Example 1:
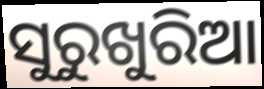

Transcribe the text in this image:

ସୁରୁଖୁରିଆ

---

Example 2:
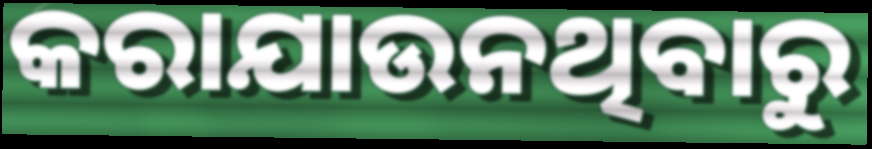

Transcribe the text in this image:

କରାଯାଉନଥିବାରୁ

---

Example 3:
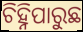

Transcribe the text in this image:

ଚିହ୍ନିପାରୁଛ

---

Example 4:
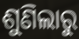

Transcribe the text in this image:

ଶୁଣିଲାରୁ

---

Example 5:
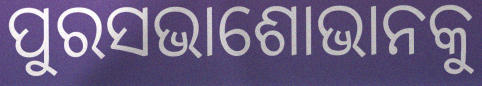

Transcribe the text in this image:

ପୁରସଭାଶୋଭାନକୁ